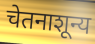
चेतनाशून्य